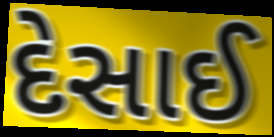
દેસાઈ